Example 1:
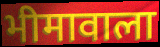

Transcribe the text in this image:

भीमावाला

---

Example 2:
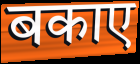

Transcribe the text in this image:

बकाए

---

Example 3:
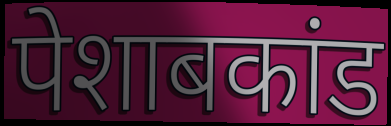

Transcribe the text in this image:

पेशाबकांड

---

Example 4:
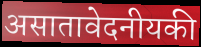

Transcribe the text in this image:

असातावेदनीयकी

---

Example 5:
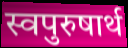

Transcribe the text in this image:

स्वपुरुषार्थ